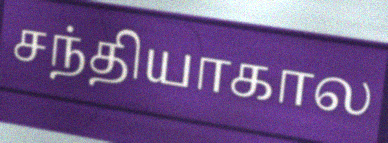
சந்தியாகால